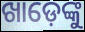
ଖାଡ଼େଙ୍କୁ